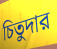
চিতুদার